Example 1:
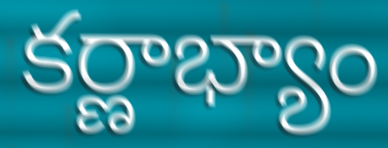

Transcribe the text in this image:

కర్ణాభ్యాం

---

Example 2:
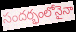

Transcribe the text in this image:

సందర్భంలోనైనా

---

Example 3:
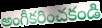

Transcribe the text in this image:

అంగీకరించకండి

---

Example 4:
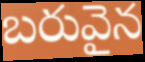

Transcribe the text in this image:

బరువైన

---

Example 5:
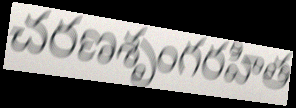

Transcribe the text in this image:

చరణశృంగరహిత